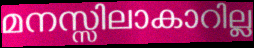
മനസ്സിലാകാറില്ല